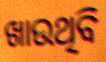
ଖାଉଥିବି